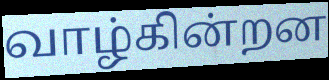
வாழ்கின்றன